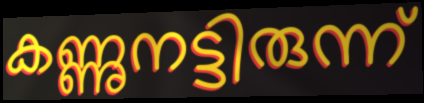
കണ്ണുനട്ടിരുന്ന്